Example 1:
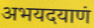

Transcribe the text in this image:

अभयदयाणं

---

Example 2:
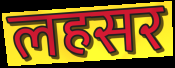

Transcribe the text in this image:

लहसर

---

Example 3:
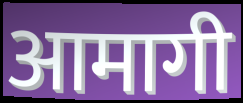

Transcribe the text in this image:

आमागी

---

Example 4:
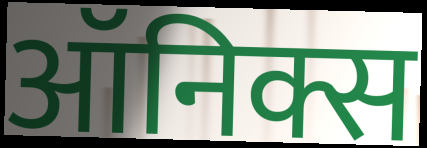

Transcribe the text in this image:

ऑनिक्स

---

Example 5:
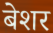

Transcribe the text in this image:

बेशर